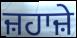
ਜ਼ਹਾਜ਼ੇ